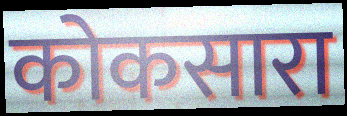
कोकसारा